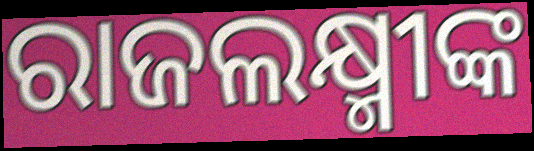
ରାଜଲକ୍ଷ୍ମୀଙ୍କ